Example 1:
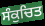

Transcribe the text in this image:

ਸੰਕੁਚਿਤ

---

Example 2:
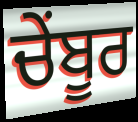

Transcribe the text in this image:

ਚੇਂਬੂਰ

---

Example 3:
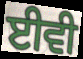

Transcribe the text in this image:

ਈਵੀ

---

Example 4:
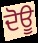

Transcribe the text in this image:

ਦੋਊ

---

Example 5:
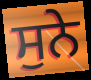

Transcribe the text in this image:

ਸੁਨੇ